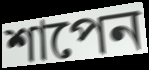
শাপেন